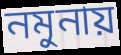
নমুনায়